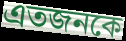
এতজনকে